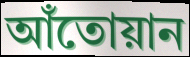
আঁতোয়ান